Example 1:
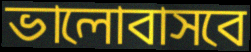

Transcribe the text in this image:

ভালোবাসবে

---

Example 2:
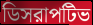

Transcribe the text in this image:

ডিসরাপটিভ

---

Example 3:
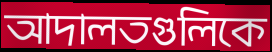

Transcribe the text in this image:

আদালতগুলিকে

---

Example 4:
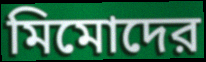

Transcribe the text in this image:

মিমোদের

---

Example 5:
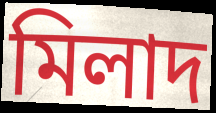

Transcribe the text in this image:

মিলাদ